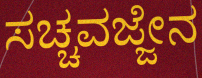
ಸಚ್ಚವಜ್ಜೇನ